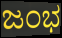
ಜಂಭ